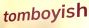
tomboyish